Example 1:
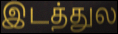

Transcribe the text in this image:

இடத்துல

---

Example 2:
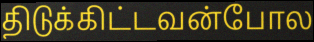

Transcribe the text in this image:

திடுக்கிட்டவன்போல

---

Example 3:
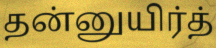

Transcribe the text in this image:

தன்னுயிர்த்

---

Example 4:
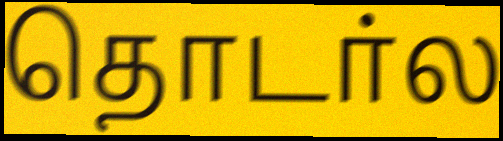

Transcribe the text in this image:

தொடர்ல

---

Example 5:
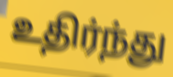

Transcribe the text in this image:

உதிர்ந்து